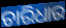
ଚାରିଧାର